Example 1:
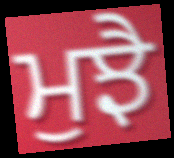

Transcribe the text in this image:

ਮੁਝੈ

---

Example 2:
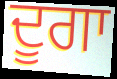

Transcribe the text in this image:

ਦੂਗਾ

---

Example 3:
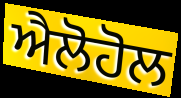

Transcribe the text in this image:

ਐਲੋਹੋਲ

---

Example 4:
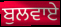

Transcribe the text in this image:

ਬੁਲਵਾਏ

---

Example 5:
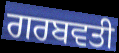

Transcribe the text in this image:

ਗਰਬਵਤੀ